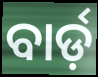
ବାର୍ଡ଼